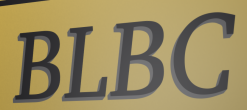
BLBC